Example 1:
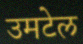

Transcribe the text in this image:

उमटेल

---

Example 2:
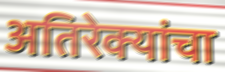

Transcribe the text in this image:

अतिरेक्यांचा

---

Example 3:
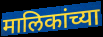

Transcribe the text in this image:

मालिकांच्या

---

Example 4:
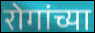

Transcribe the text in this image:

रोगांच्या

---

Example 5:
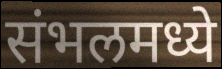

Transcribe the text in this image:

संभलमध्ये